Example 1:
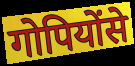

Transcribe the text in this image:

गोपियोंसे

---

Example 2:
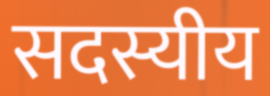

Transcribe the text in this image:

सदस्‍यीय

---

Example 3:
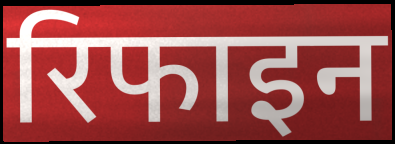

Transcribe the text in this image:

रिफाइन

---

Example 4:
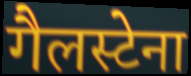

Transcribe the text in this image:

गैलस्टेना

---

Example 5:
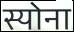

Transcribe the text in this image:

स्योना